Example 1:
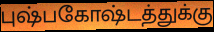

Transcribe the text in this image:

புஷ்பகோஷ்டத்துக்கு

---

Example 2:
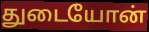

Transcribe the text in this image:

துடையோன்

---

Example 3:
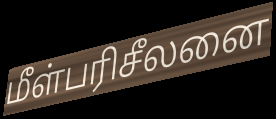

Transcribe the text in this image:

மீள்பரிசீலனை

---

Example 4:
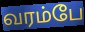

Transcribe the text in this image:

வரம்பே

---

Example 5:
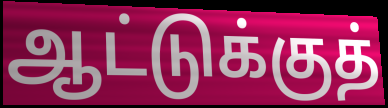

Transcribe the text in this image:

ஆட்டுக்குத்